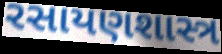
રસાયણશાસ્ત્ર